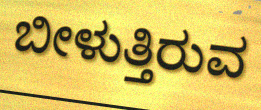
ಬೀಳುತ್ತಿರುವ